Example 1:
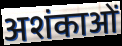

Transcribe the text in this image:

अशंकाओं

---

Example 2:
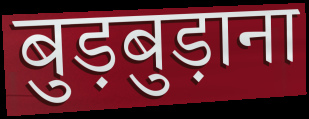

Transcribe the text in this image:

बुड़बुड़ाना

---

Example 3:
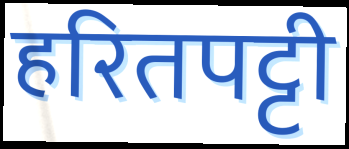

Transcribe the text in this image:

हरितपट्टी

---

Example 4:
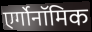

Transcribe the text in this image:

एर्गोनॉमिक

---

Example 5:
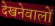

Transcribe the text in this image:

देखनेवालों